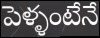
పెళ్ళంటేనే